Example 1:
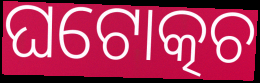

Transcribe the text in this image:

ଘଟୋତ୍କଚ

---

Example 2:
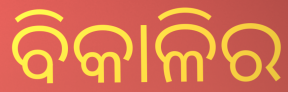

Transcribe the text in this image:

ବିକାଳିର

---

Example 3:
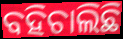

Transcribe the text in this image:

ବହିଚାଲିଛି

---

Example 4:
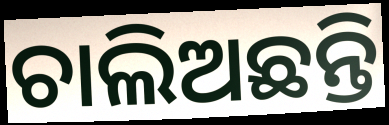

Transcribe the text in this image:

ଚାଲିଅଛନ୍ତି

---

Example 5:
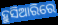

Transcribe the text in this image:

ହୁସିଆରିରେ